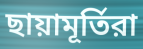
ছায়ামূর্তিরা